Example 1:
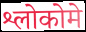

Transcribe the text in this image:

श्लोकोमे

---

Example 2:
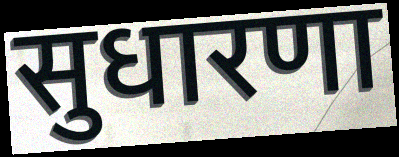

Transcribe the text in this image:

सुधारणा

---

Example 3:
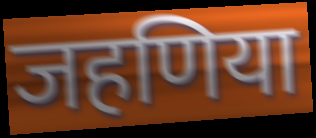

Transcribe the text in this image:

जहणिया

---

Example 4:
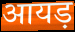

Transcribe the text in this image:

आयड़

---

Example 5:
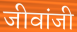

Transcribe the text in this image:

जीवांजी